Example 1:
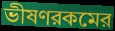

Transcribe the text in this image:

ভীষণরকমের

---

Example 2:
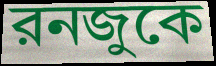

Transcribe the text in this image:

রনজুকে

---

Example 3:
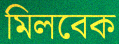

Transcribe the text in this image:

মিলবেক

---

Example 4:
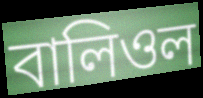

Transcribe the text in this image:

বালিওল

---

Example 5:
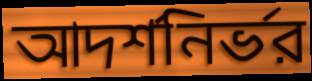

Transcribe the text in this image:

আদর্শনির্ভর